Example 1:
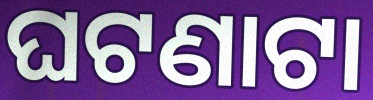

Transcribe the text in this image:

ଘଟଣାଟା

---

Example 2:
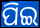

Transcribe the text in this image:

ପିଇ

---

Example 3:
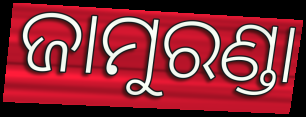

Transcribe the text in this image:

ଜାମୁରଣ୍ଡା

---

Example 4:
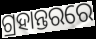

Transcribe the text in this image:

ଗ୍ରହାନ୍ତରରେ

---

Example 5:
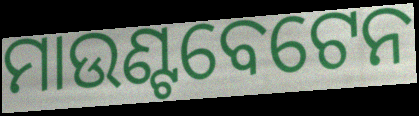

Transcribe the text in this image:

ମାଉଣ୍ଟବେଟେନ